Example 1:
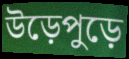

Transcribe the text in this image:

উড়েপুড়ে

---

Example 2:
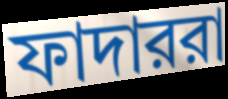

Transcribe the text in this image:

ফাদাররা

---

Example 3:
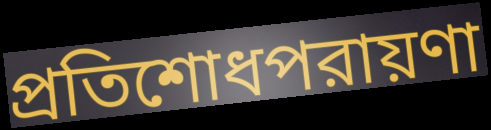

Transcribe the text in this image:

প্রতিশোধপরায়ণা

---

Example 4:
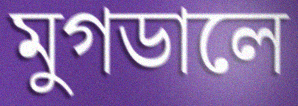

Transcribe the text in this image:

মুগডালে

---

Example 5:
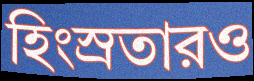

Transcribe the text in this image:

হিংস্রতারও